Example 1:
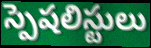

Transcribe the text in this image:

స్పెషలిస్టులు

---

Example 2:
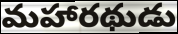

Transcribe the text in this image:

మహారథుడు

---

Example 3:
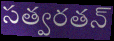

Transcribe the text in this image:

సత్వరతన్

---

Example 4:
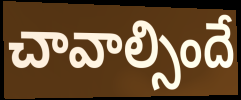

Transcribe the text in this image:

చావాల్సిందే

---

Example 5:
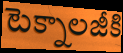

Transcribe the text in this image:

టెక్నాలజీకి